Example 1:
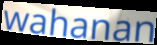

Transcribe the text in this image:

wahanan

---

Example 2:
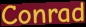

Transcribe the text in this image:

Conrad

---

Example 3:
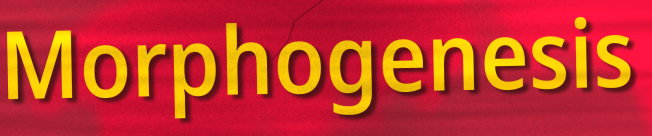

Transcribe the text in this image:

Morphogenesis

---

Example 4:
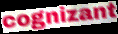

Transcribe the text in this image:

cognizant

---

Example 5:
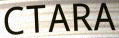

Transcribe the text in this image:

CTARA